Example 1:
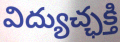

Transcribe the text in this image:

విద్యుచ్ఛక్తి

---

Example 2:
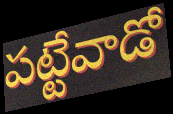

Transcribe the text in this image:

పట్టేవాడో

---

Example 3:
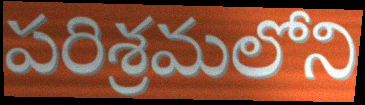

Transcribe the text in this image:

పరిశ్రమలోని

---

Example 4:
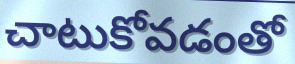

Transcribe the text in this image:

చాటుకోవడంతో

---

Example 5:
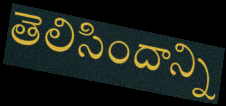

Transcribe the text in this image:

తెలిసిందాన్ని